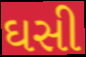
ઘસી